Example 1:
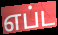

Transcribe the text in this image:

எப்ட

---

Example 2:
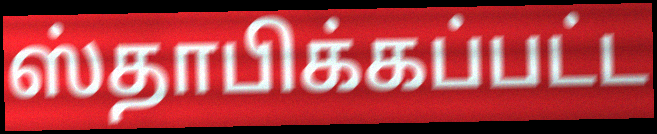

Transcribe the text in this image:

ஸ்தாபிக்கப்பட்ட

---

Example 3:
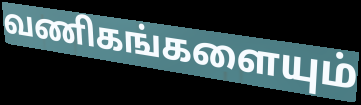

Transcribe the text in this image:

வணிகங்களையும்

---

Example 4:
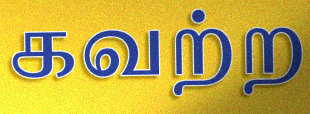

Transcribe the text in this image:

கவற்ற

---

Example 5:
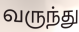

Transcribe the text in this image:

வருந்து